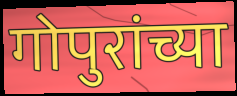
गोपुरांच्या